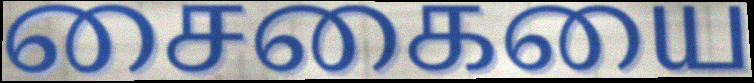
சைகையை